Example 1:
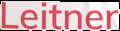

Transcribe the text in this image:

Leitner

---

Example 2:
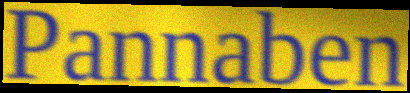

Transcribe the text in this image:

Pannaben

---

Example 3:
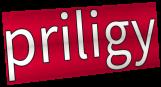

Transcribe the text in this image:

priligy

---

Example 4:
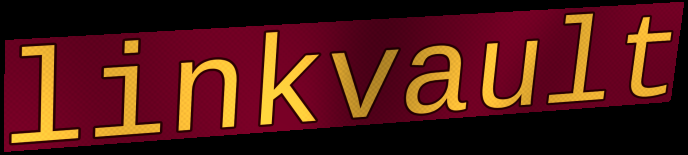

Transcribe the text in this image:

linkvault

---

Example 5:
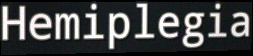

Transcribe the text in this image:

Hemiplegia